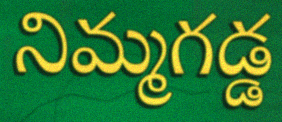
నిమ్మగడ్డ